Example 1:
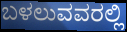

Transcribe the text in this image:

ಬಳಲುವವರಲ್ಲಿ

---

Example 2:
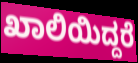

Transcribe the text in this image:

ಖಾಲಿಯಿದ್ದರೆ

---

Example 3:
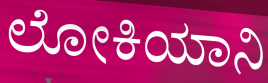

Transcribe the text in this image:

ಲೋಕಿಯಾನಿ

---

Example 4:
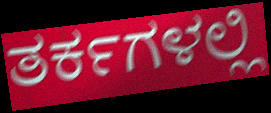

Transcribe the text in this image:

ತರ್ಕಗಳಲ್ಲಿ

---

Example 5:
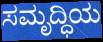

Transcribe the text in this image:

ಸಮೃದ್ಧಿಯ